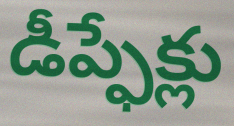
డీప్ఫేక్లు